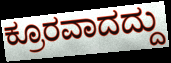
ಕ್ರೂರವಾದದ್ದು